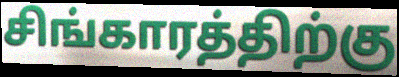
சிங்காரத்திற்கு